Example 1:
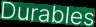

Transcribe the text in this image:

Durables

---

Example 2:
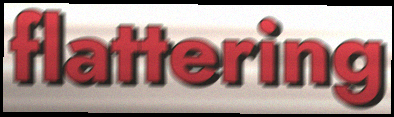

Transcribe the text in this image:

flattering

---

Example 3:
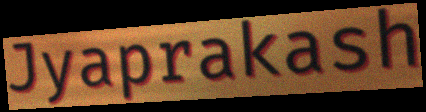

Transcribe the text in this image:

Jyaprakash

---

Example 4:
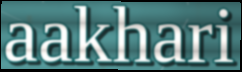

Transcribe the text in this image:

aakhari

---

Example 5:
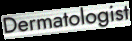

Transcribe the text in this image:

Dermatologist